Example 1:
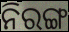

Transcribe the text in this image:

ନିରଙ୍ଗ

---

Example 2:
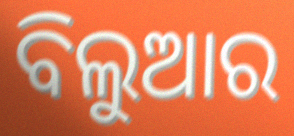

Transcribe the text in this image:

ବିଲୁଆର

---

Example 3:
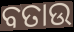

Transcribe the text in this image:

ବତାଉ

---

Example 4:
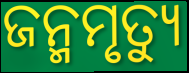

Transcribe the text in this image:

ଜନ୍ମମୃତ୍ୟୁ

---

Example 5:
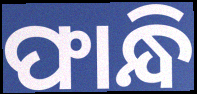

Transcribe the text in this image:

ଫାନ୍ଧି